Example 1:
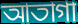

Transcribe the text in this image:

আতাগা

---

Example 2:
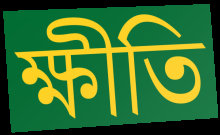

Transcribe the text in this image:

ক্ষীতি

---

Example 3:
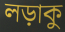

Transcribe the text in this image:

লড়াকু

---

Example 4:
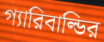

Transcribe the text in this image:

গ্যারিবাল্ডির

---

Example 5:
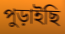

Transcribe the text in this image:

পুড়াইছি